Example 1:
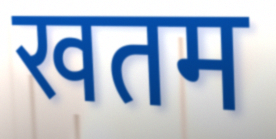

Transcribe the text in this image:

खतम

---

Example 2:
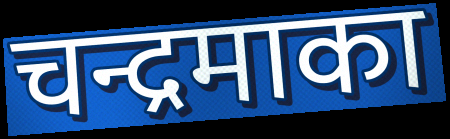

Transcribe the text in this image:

चन्द्रमाका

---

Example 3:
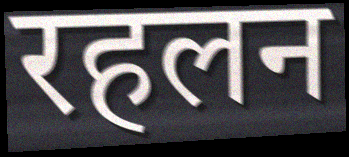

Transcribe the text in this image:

रहलन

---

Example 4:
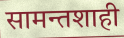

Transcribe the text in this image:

सामन्तशाही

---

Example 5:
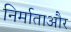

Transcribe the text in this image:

निर्माताऔर